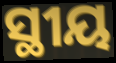
ସ୍ଥୀୟ